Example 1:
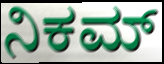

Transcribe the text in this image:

ನಿಕಮ್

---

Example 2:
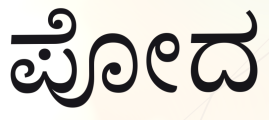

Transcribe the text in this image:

ಪೋದ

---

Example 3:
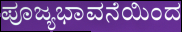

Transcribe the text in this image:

ಪೂಜ್ಯಭಾವನೆಯಿಂದ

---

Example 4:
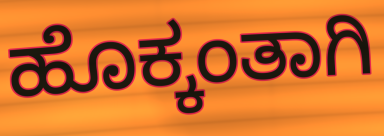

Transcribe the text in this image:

ಹೊಕ್ಕಂತಾಗಿ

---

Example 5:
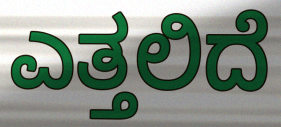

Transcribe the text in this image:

ಎತ್ತಲಿದೆ